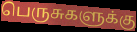
பெருசுகளுக்கு